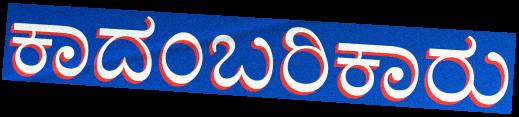
ಕಾದಂಬರಿಕಾರು